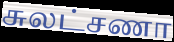
சுலட்சணா